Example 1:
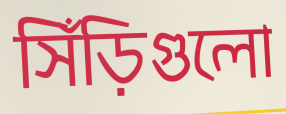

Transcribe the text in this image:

সিঁড়িগুলো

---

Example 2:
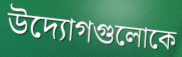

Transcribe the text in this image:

উদ্যোগগুলোকে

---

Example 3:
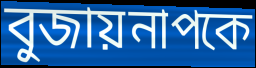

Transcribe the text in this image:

বুজায়নাপকে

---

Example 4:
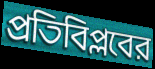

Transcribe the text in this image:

প্রতিবিপ্লবের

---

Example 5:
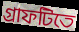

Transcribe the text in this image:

গ্রাফটিতে